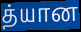
த்யான